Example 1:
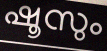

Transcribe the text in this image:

ഷൂസും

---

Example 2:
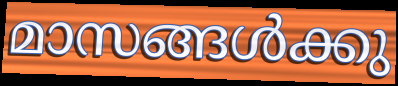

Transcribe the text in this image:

മാസങ്ങൾക്കു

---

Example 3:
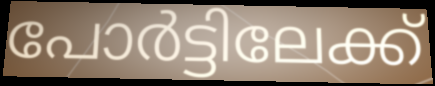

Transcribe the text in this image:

പോർട്ടിലേക്ക്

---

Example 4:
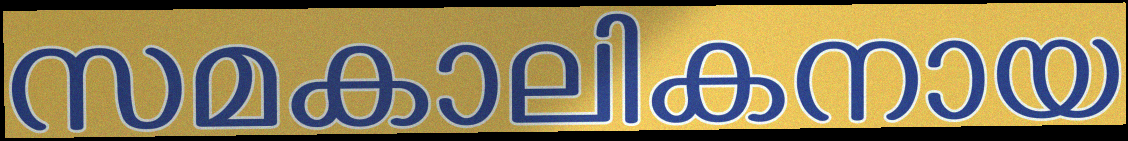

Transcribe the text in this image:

സമകാലികനായ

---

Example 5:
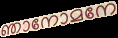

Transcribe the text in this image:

ഞാനോമനേ